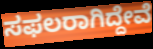
ಸಫಲರಾಗಿದ್ದೇವೆ